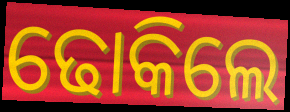
ଢୋକିଲେ